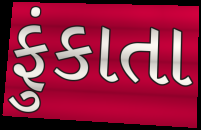
ફુંકાતા